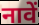
नावें